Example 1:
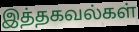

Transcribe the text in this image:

இத்தகவல்கள்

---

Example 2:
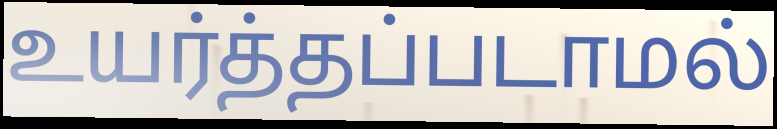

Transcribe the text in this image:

உயர்த்தப்படாமல்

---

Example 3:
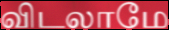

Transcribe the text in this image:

விடலாமே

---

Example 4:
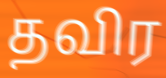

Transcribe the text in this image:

தவிர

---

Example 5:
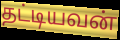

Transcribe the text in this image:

தட்டியவன்